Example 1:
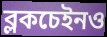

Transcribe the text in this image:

ব্লকচেইনও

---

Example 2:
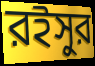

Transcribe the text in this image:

রইসুর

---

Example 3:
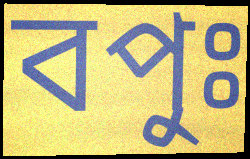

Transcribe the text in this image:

বপুঃ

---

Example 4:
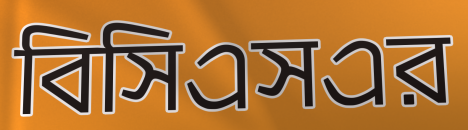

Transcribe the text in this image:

বিসিএসএর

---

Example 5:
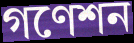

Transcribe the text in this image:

গণেশন